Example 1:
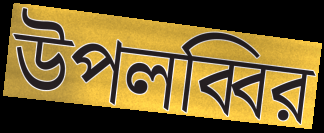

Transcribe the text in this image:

উপলব্বির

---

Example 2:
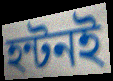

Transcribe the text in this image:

হন্টনই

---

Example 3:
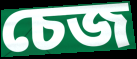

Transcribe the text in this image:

চেজ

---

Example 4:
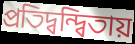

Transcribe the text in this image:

প্রতিদ্বন্দ্বিতায়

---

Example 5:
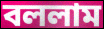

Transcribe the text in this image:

বললাম